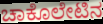
ಚಾಕೊಲೇಟಿನ